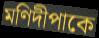
মণিদীপাকে